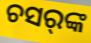
ଚସର୍‌ଙ୍କ